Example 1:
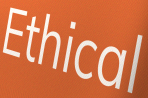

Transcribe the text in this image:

Ethical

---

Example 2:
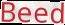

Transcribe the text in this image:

Beed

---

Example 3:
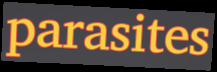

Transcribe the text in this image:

parasites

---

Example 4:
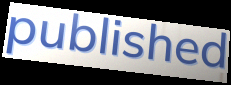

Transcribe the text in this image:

published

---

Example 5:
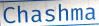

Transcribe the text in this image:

Chashma